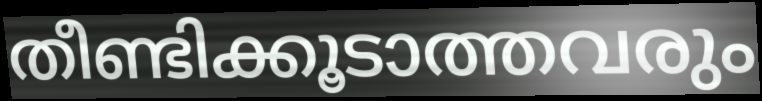
തീണ്ടിക്കൂടാത്തവരും